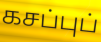
கசப்புப்